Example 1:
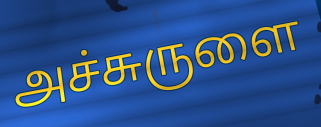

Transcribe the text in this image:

அச்சுருளை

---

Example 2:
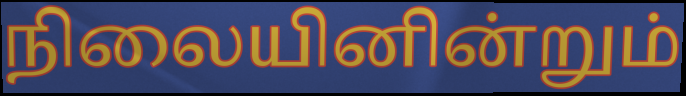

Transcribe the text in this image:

நிலையினின்றும்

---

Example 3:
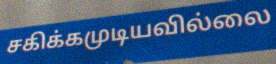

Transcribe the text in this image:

சகிக்கமுடியவில்லை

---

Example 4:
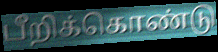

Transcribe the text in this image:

பீறிக்கொண்டு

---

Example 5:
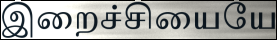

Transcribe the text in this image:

இறைச்சியையே